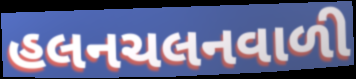
હલનચલનવાળી